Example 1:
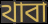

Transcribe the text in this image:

থাবা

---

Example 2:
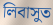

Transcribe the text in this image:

লিবাসুত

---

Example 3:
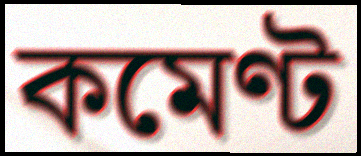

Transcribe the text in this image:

কমেণ্ট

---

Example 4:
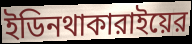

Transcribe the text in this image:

ইডিনথাকারাইয়ের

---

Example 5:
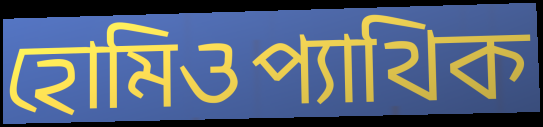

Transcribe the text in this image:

হোমিওপ্যাথিক